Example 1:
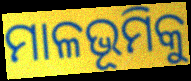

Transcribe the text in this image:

ମାଳଭୂମିକୁ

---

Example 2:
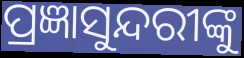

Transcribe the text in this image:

ପ୍ରଜ୍ଞାସୁନ୍ଦରୀଙ୍କୁ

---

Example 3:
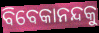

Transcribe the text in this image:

ବିବେକାନନ୍ଦକୁ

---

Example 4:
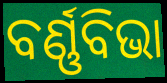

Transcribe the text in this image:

ବର୍ଣ୍ଣବିଭା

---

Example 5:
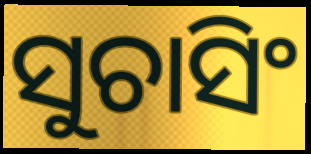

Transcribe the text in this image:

ସୁଚାସିଂ